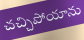
చచ్చిపోయాను